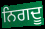
ਨਿਗਦੂ